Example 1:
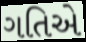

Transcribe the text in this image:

ગતિએ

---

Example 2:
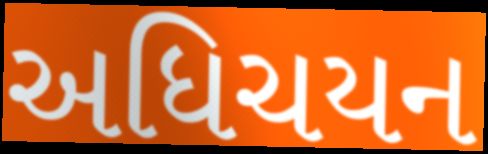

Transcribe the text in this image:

અધિચયન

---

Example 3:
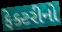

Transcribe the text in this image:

ફેક્ટરીનો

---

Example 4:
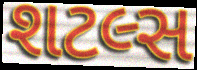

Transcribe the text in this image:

શટલ્સ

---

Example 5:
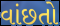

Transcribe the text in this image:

વાંછતો